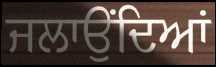
ਜਲਾਉਂਦਿਆਂ